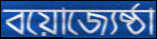
বয়োজ্যেষ্ঠা